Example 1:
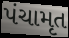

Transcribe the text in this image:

પંચામૃત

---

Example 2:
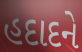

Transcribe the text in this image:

હદાદને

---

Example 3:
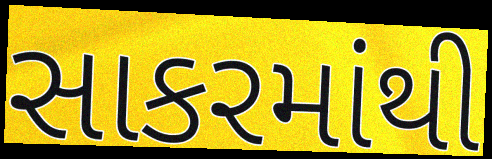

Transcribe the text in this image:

સાકરમાંથી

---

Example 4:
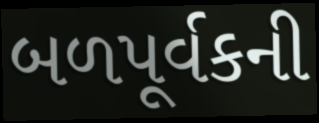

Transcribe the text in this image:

બળપૂર્વકની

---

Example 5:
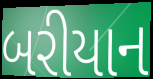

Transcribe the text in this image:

બરીયાન